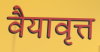
वैयावृत्त